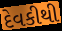
દેવકીથી